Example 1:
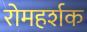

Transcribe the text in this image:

रोमहर्शक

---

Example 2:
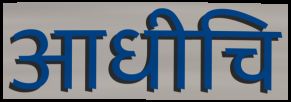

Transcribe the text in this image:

आधीचि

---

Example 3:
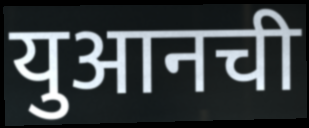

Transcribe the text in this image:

युआनची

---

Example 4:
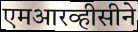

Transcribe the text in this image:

एमआरव्हीसीने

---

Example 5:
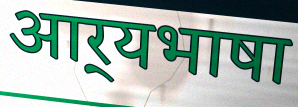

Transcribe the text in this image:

आर्यभाषा